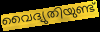
വൈദ്യുതിയുണ്ട്